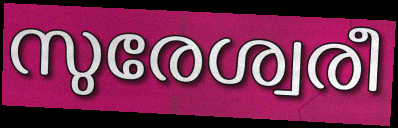
സുരേശ്വരീ